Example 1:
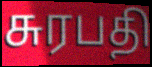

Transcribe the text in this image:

சுரபதி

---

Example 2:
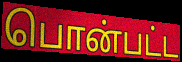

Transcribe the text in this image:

பொன்பட்ட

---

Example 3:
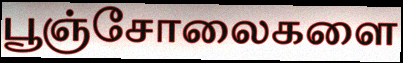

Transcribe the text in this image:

பூஞ்சோலைகளை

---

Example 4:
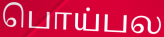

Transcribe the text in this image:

பொய்பல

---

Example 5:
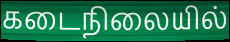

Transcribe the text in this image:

கடைநிலையில்